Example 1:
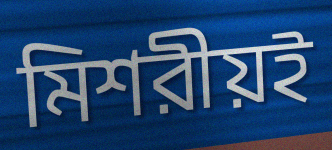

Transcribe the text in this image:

মিশরীয়ই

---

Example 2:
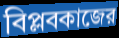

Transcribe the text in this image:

বিপ্লবকাজের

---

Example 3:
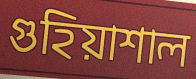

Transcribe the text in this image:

গুহিয়াশাল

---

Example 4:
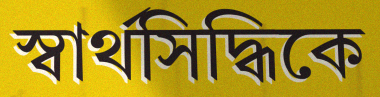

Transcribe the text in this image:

স্বার্থসিদ্ধিকে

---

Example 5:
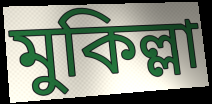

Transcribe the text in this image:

মুকিল্লা